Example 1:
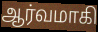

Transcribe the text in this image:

ஆர்வமாகி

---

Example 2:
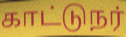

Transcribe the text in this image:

காட்டுநர்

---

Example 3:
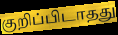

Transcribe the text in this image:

குறிப்பிடாதது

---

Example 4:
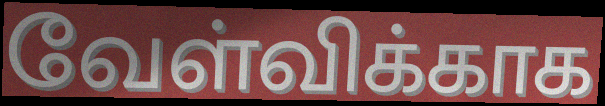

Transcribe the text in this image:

வேள்விக்காக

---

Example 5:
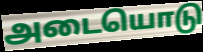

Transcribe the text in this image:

அடையொடு